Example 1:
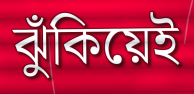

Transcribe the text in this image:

ঝুঁকিয়েই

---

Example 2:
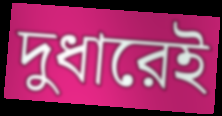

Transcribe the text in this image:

দুধারেই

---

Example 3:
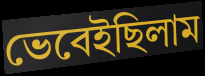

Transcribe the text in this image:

ভেবেইছিলাম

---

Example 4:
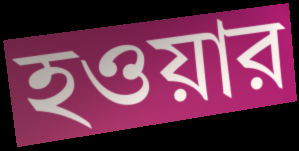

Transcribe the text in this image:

হওয়ার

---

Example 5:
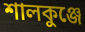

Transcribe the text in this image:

শালকুঞ্জে